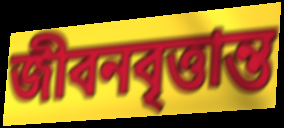
জীবনবৃত্তান্ত